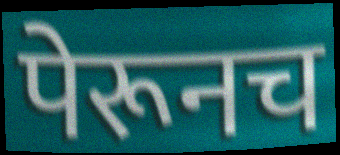
पेरूनच